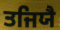
ਤਜਿਯੈ